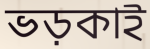
ভড়কাই